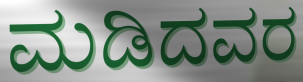
ಮಡಿದವರ